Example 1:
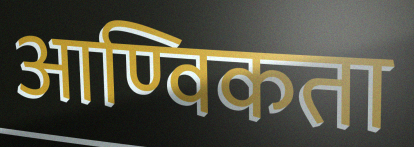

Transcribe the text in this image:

आण्विकता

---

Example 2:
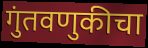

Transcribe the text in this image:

गुंतवणुकीचा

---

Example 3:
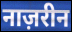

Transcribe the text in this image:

नाज़रीन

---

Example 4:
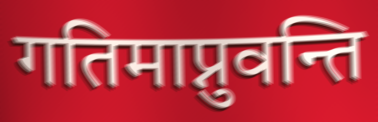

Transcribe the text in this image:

गतिमाप्नुवन्ति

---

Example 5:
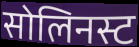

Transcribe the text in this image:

सोलिनस्ट